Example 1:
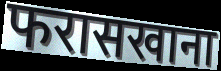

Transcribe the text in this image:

फरासखाना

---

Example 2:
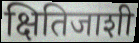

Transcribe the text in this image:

क्षितिजाशी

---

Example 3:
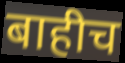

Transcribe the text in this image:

बाहीच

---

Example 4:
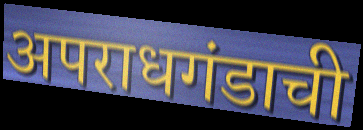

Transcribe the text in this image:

अपराधगंडाची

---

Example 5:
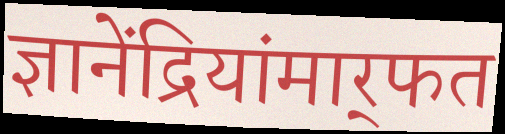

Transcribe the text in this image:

ज्ञानेंद्रियांमार्फत